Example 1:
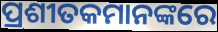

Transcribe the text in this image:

ପ୍ରଶୀତକମାନଙ୍କରେ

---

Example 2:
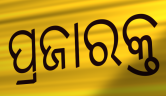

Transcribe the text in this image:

ପ୍ରଜାରକ୍ତ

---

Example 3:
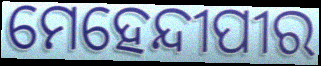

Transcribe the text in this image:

ମେହେନ୍ଦୀପୀର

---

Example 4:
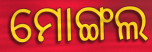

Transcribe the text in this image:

ମୋଙ୍ଗଲ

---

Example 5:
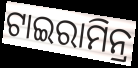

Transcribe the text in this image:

ଟାଇରାମିନ୍ର